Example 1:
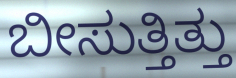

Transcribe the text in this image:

ಬೀಸುತ್ತಿತ್ತು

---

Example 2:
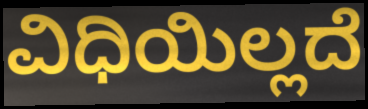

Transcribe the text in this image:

ವಿಧಿಯಿಲ್ಲದೆ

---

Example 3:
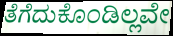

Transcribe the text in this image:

ತೆಗೆದುಕೊಂಡಿಲ್ಲವೇ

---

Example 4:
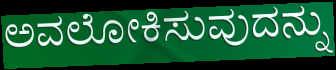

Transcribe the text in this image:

ಅವಲೋಕಿಸುವುದನ್ನು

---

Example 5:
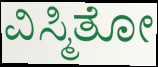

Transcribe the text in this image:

ವಿಸ್ಮಿತೋ